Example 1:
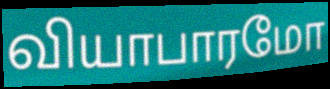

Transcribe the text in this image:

வியாபாரமோ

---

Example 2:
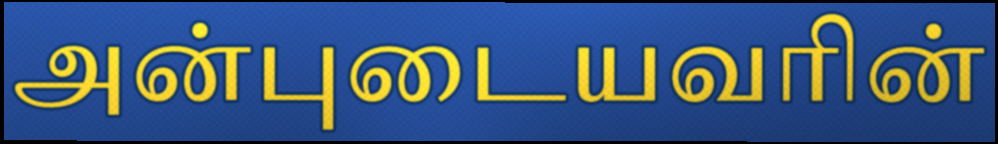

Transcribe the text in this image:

அன்புடையவரின்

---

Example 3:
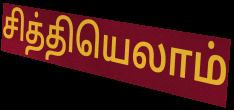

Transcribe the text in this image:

சித்தியெலாம்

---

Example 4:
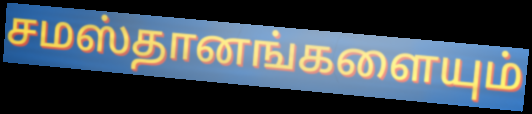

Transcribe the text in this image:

சமஸ்தானங்களையும்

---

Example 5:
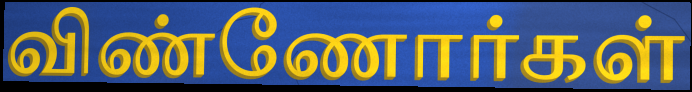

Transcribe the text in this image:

விண்ணோர்கள்